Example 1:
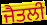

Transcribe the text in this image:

ਜੈਤਲੀ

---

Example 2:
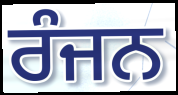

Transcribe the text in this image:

ਰੰਜਨ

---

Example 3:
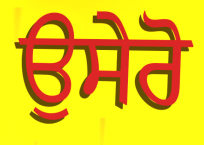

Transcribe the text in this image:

ਉਸੇਰੋ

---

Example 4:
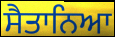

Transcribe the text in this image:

ਸੈਤਾਨਿਆ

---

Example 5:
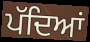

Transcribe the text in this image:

ਪੱਦਿਆਂ